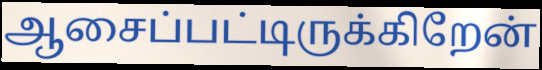
ஆசைப்பட்டிருக்கிறேன்